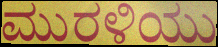
ಮುರಳಿಯು